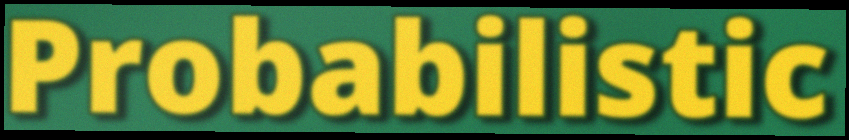
Probabilistic